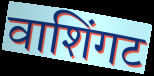
वाशिंगट